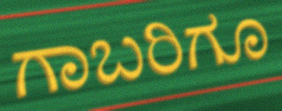
ಗಾಬರಿಗೂ